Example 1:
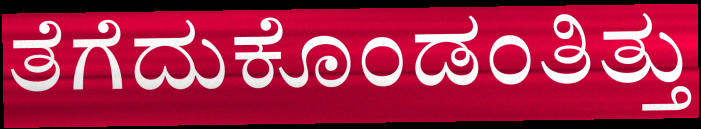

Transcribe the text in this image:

ತೆಗೆದುಕೊಂಡಂತಿತ್ತು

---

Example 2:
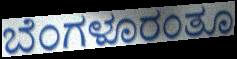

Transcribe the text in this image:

ಬೆಂಗಳೂರಂತೂ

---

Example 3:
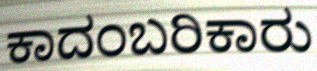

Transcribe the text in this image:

ಕಾದಂಬರಿಕಾರು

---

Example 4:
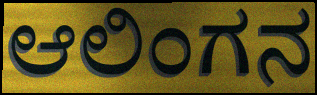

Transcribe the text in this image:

ಆಲಿಂಗನ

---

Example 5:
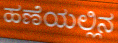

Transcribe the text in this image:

ಹಣೆಯಲ್ಲಿನ